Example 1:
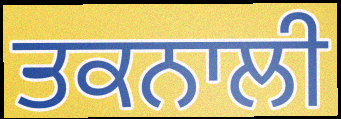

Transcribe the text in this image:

ਤਕਨਾਲੀ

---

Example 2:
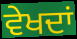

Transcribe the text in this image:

ਵੇਖਦਾਂ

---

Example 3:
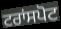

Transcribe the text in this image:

ਟਰਾਂਸਪੋਟ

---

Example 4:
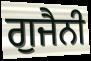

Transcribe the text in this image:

ਗੁਜੈਨੀ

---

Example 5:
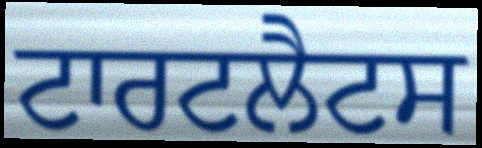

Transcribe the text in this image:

ਟਾਰਟਲੈਟਸ